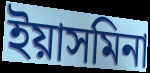
ইয়াসমিনা